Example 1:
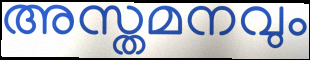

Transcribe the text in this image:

അസ്തമനവും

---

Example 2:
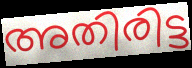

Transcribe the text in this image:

അതിരിട്ട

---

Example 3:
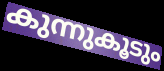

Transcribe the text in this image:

കുന്നുകൂടും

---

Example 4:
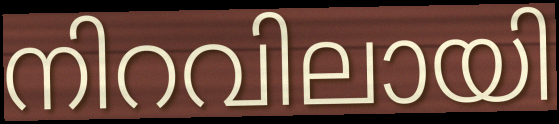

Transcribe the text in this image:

നിറവിലായി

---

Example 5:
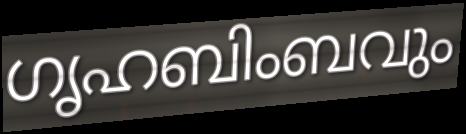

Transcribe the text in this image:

ഗൃഹബിംബവും